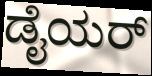
ಡೈಯರ್